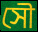
সৌ